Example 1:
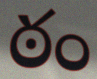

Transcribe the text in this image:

ఠం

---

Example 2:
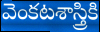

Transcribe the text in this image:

వెంకటశాస్త్రికి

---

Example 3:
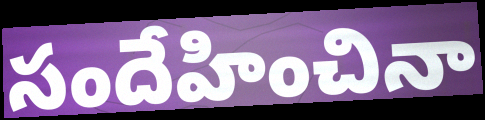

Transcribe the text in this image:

సందేహించినా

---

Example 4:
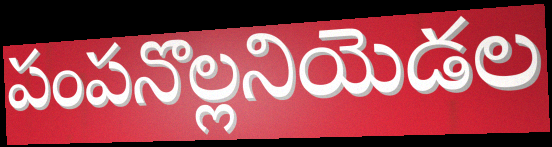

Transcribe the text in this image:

పంపనొల్లనియెడల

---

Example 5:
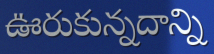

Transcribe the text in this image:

ఊరుకున్నదాన్ని